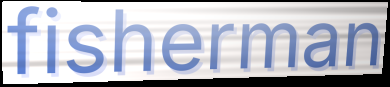
fisherman